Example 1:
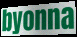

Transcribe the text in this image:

byonna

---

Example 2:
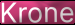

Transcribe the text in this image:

Krone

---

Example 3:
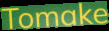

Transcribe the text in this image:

Tomake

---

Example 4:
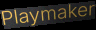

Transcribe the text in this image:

Playmaker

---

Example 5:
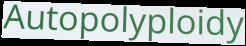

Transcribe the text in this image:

Autopolyploidy